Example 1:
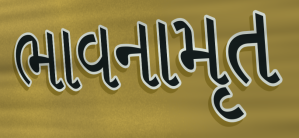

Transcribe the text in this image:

ભાવનામૃત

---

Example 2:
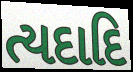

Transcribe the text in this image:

ત્યદાદિ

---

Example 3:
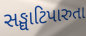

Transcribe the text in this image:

સઙ્ઘાટિપારુતા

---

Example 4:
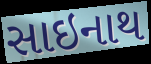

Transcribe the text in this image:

સાઇનાથ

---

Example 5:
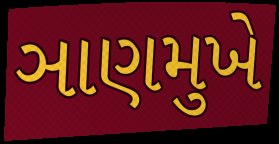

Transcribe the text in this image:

ઞાણમુખે